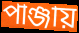
পাঞ্জায়